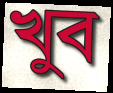
খুব